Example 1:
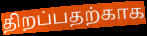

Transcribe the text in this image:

திறப்பதற்காக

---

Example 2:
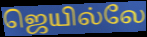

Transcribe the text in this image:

ஜெயில்லே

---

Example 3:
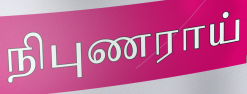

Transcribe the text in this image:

நிபுணராய்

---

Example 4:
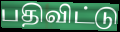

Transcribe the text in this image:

பதிவிட்டு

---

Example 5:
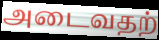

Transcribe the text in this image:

அடைவதற்